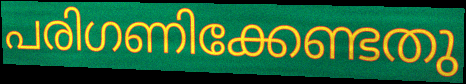
പരിഗണിക്കേണ്ടതു